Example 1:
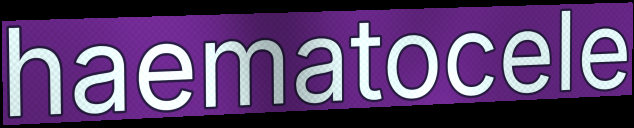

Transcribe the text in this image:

haematocele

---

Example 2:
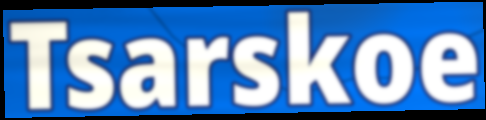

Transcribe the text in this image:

Tsarskoe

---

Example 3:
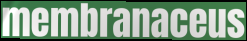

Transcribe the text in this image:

membranaceus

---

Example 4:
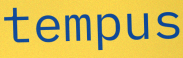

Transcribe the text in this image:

tempus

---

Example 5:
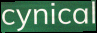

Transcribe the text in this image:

cynical